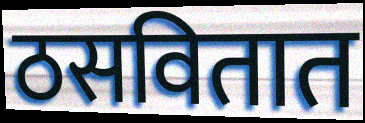
ठसवितात